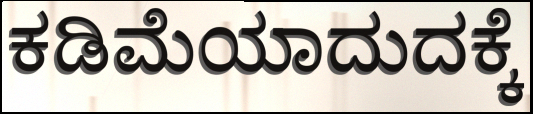
ಕಡಿಮೆಯಾದುದಕ್ಕೆ